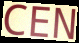
CEN